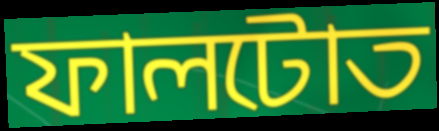
ফালটোত